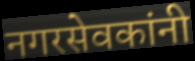
नगरसेवकांनी